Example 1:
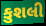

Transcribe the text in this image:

કુશલી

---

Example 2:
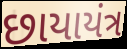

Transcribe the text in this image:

છાયાયંત્ર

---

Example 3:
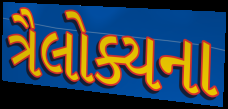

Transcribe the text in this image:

ત્રૈલોક્યના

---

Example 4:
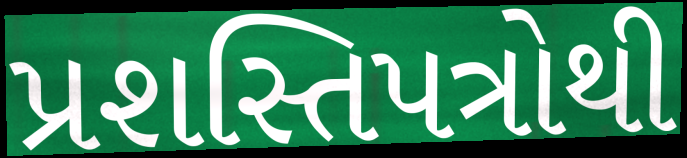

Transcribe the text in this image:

પ્રશસ્તિપત્રોથી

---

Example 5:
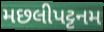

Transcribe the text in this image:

મછલીપટ્ટનમ